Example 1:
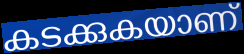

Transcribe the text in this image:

കടക്കുകയാണ്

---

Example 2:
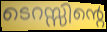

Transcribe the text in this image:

ടെറസ്സിന്റെ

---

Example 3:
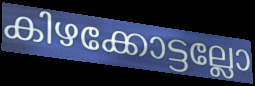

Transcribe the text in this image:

കിഴക്കോട്ടല്ലോ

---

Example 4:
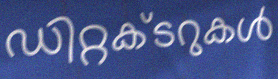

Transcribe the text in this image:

ഡിറ്റക്ടറുകൾ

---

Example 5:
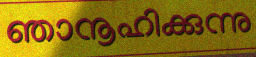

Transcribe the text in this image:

ഞാനൂഹിക്കുന്നു